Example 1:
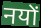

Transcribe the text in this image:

नयों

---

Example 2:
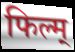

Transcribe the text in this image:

फिल्म्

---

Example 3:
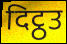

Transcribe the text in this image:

दिट्ठउ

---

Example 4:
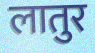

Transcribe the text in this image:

लातुर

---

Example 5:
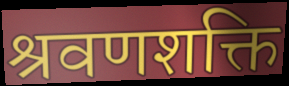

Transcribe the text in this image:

श्रवणशक्ति